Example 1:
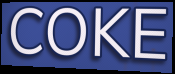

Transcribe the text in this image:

COKE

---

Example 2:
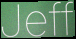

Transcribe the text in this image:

Jeff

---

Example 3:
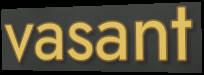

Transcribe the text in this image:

vasant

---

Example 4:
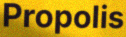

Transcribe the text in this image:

Propolis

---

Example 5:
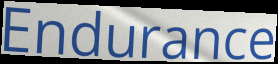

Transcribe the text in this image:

Endurance